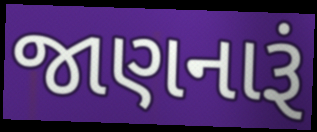
જાણનારૂં